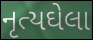
નૃત્યઘેલા